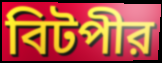
বিটপীর